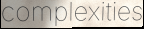
complexities